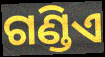
ଗଣ୍ଡିଏ